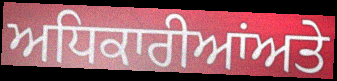
ਅਧਿਕਾਰੀਆਂਅਤੇ